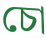
চো